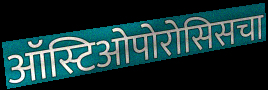
ऑस्टिओपोरोसिसचा